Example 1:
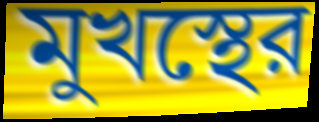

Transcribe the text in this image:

মুখস্থের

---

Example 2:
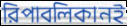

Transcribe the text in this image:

রিপাবলিকানই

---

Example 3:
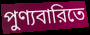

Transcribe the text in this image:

পুণ্যবারিতে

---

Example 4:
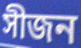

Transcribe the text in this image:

সীজন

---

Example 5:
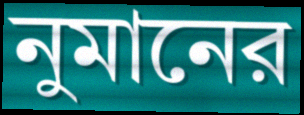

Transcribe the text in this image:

নুমানের